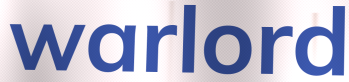
warlord